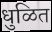
धुळित